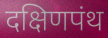
दक्षिणपंथ